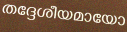
തദ്ദേശീയമായോ